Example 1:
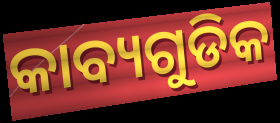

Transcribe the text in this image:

କାବ୍ୟଗୁଡିକ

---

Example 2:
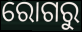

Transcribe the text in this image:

ରୋଗରୁ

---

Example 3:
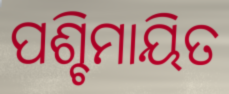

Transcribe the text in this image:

ପଶ୍ଚିମାୟିତ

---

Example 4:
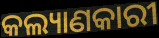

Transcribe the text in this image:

କଲ୍ୟାଣକାରୀ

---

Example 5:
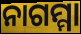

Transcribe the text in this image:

ନାଗମ୍ମା